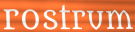
rostrum